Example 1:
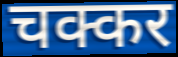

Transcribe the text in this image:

चक्कर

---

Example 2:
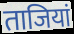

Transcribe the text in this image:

ताजियां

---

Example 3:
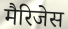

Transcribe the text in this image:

मैरिजेस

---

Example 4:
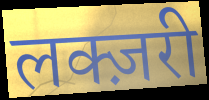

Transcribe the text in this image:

लक्ज़री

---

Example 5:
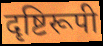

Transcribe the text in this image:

दृष्टिरूपी